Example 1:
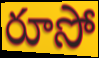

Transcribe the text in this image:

రూసో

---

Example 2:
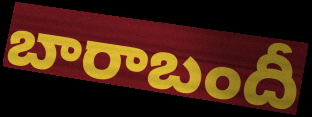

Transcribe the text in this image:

బారాబందీ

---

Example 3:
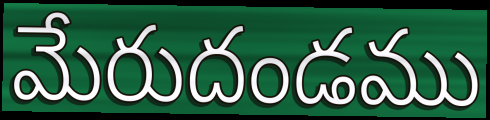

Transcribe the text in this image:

మేరుదండము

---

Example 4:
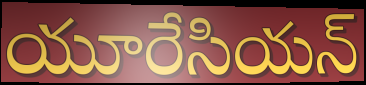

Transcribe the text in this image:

యూరేసియన్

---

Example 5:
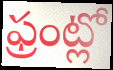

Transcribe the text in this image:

ఫ్రంట్లో